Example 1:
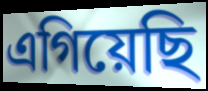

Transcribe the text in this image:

এগিয়েছি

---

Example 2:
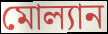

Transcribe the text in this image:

মোল্যান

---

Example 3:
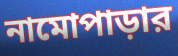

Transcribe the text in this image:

নামোপাড়ার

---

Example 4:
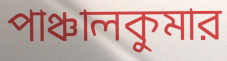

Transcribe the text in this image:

পাঞ্চালকুমার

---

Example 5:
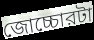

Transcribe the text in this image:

জোচ্চোরটা